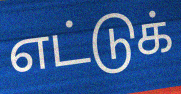
எட்டுக்